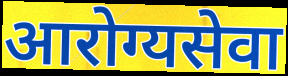
आरोग्यसेवा